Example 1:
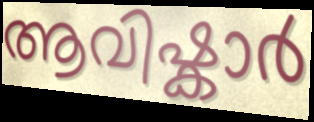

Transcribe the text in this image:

ആവിഷ്കാർ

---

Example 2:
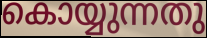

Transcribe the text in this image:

കൊയ്യുന്നതു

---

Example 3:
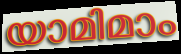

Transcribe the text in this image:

യാമിമാം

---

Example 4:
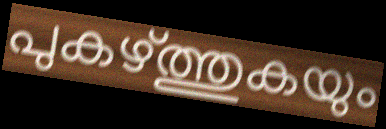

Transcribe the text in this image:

പുകഴ്ത്തുകയും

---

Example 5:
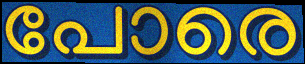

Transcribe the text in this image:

പോരെ